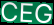
CEG